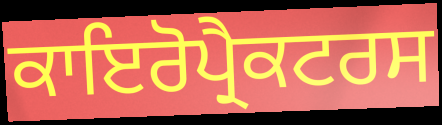
ਕਾਇਰੋਪ੍ਰੈਕਟਰਸ